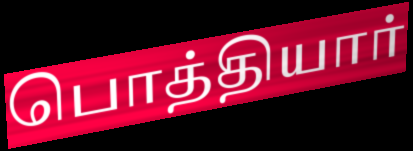
பொத்தியார்